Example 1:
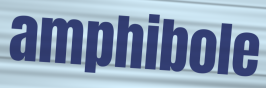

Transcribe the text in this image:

amphibole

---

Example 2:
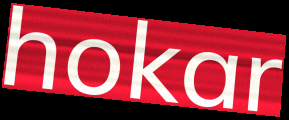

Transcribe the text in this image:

hokar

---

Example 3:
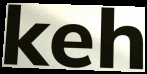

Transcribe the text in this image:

keh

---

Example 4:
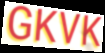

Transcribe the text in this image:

GKVK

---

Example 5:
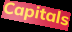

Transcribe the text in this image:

Capitals